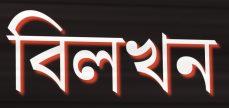
বিলখন